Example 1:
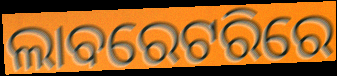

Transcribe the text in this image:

ଲାବରେଟରିରେ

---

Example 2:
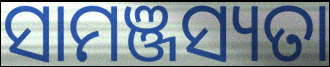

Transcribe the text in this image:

ସାମଞ୍ଜସ୍ୟତା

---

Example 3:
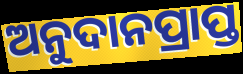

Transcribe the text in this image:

ଅନୁଦାନପ୍ରାପ୍ତ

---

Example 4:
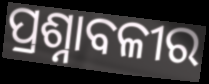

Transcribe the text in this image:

ପ୍ରଶ୍ନାବଳୀର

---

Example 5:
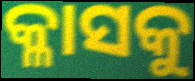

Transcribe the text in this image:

କ୍ଳାସକୁ